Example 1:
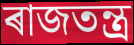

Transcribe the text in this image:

ৰাজতন্ত্ৰ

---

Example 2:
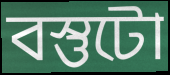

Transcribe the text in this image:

বস্তুটো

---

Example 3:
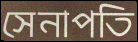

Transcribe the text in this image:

সেনাপতি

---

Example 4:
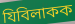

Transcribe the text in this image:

যিবিলাকক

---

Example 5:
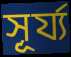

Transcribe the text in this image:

সূৰ্য্য